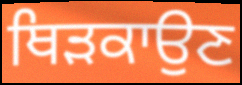
ਥਿੜਕਾਉਣ